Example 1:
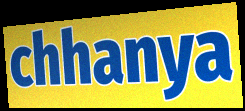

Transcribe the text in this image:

chhanya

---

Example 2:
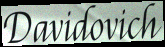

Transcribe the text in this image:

Davidovich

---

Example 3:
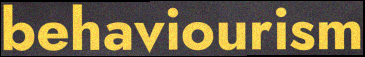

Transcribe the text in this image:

behaviourism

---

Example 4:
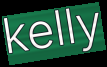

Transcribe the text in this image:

kelly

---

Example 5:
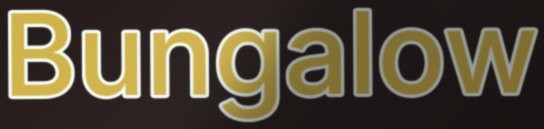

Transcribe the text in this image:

Bungalow